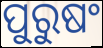
ପୁରୁଷଂ